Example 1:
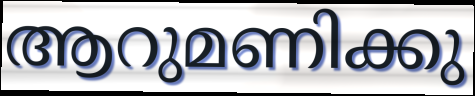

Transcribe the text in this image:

ആറുമണിക്കു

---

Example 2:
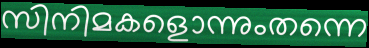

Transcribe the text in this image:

സിനിമകളൊന്നുംതന്നെ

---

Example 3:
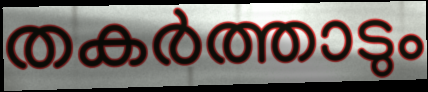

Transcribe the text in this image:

തകർത്താടും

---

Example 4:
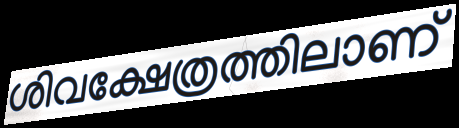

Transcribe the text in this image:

ശിവക്ഷേത്രത്തിലാണ്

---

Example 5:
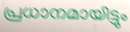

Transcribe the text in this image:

പ്രധാനമായിട്ടും